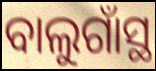
ବାଲୁଗାଁସ୍ଥ